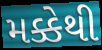
મક્કેથી